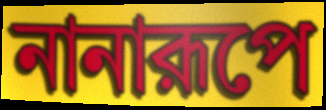
নানারূপে